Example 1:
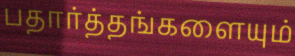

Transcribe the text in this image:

பதார்த்தங்களையும்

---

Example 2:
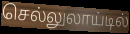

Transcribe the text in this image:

செல்லுலாய்டில்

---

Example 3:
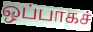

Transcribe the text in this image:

ஒப்பாகச்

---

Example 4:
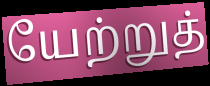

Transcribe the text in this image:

யேற்றுத்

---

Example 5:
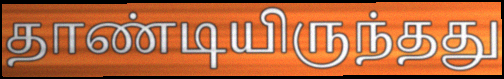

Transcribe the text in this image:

தாண்டியிருந்தது